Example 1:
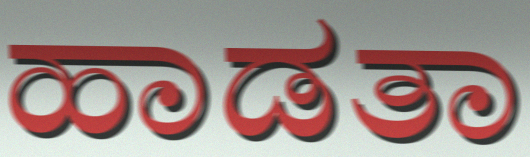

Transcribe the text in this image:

ಹಾಡತಾ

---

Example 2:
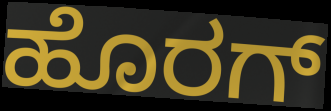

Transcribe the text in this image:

ಹೊರಗ್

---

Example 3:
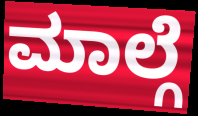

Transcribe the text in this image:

ಮಾಲ್ಗೆ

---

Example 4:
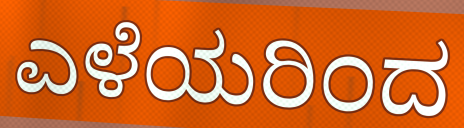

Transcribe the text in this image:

ಎಳೆಯರಿಂದ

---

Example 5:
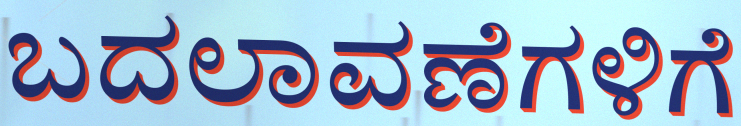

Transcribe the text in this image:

ಬದಲಾವಣೆಗಳಿಗೆ